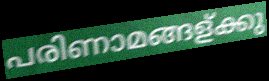
പരിണാമങ്ങള്ക്കു